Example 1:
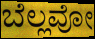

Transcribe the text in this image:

ಬೆಲ್ಲವೋ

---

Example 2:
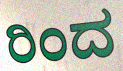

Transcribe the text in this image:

ರಿಂದ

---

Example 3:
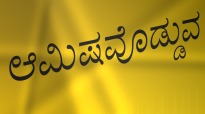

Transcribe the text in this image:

ಆಮಿಷವೊಡ್ಡುವ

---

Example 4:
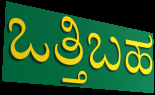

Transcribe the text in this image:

ಒತ್ತಿಬಹ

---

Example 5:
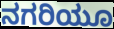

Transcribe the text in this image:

ನಗರಿಯೂ